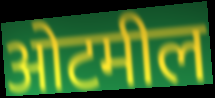
ओटमील